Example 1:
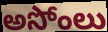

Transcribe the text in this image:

అసోంలు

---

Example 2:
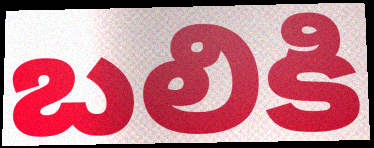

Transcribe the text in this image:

బలికి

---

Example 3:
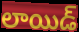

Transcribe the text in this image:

లాయిడ్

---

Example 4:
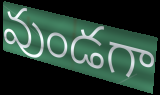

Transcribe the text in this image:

వుండగా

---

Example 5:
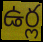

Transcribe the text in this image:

ఉర్ల